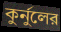
কুর্নুলের